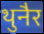
थुनैर